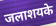
जलाशयके